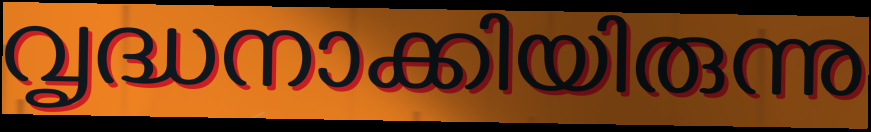
വൃദ്ധനാക്കിയിരുന്നു